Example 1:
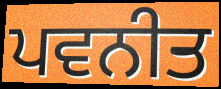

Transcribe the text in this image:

ਪਵਨੀਤ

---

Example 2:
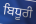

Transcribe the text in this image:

ਬਿਧੂਰੀ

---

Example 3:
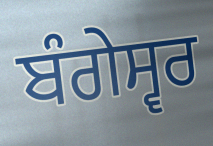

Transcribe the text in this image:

ਬੰਗੇਸ੍ਵਰ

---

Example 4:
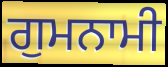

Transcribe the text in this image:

ਗੁਮਨਾਮੀ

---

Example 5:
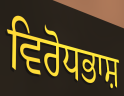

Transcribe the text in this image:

ਵਿਰੋਧਭਾਸ਼